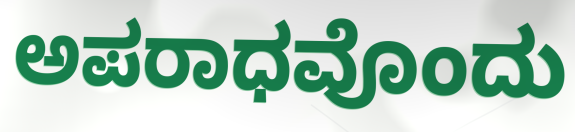
ಅಪರಾಧವೊಂದು